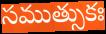
సముత్సుకః